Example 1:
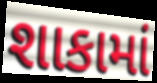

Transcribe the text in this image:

શાકામાં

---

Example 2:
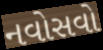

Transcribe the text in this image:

નવોસવો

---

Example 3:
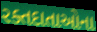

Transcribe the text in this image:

રક્તદાતાઓના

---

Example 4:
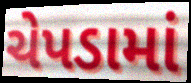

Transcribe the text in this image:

ચેપડામાં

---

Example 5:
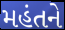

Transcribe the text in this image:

મહંતને